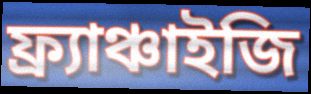
ফ্র্যাঞ্চাইজি